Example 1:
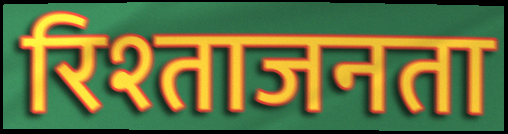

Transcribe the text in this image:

रिश्ताजनता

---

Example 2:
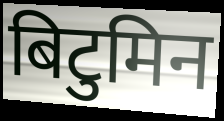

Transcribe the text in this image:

बिटुमिन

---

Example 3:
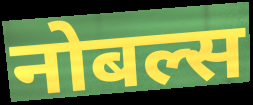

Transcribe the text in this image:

नोबल्स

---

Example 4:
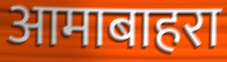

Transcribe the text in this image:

आमाबाहरा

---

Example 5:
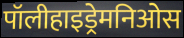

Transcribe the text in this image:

पॉलीहाइड्रेमनिओस